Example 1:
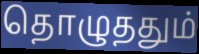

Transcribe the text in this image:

தொழுததும்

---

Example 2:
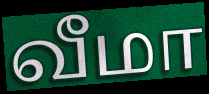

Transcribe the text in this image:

வீமா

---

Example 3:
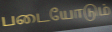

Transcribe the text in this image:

படையோடும்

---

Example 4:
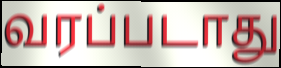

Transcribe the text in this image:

வரப்படாது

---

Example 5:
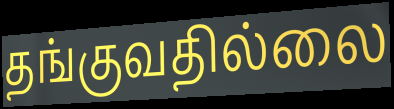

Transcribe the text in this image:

தங்குவதில்லை